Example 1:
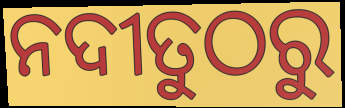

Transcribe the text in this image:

ନଦୀତୁଠରୁ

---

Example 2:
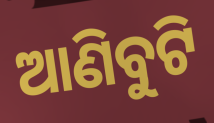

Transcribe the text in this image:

ଆଣିବୁଟି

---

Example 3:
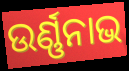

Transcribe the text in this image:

ଉର୍ଣ୍ଣନାଭ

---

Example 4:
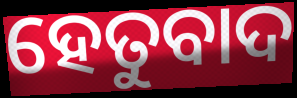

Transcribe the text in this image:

ହେତୁବାଦ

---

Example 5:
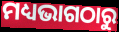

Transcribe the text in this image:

ମଧ୍ୟଭାଗଠାରୁ